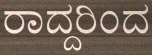
ರಾದ್ದರಿಂದ